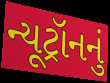
ન્યૂટ્રૉનનું